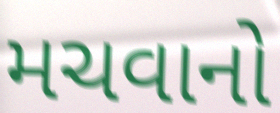
મચવાનો